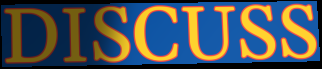
DISCUSS